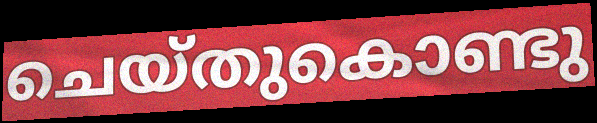
ചെയ്തുകൊണ്ടു